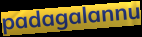
padagalannu